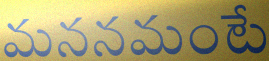
మననమంటే